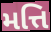
મત્તિ